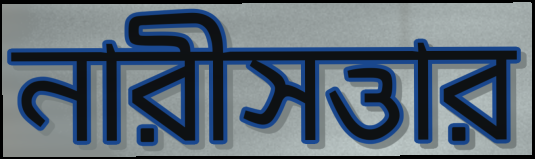
নারীসত্তার